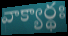
వాక్యార్థః